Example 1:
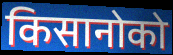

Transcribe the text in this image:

किसानोको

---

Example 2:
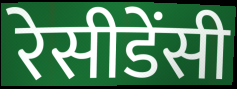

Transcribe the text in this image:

रेसीडेंसी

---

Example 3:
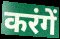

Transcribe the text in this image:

करंगें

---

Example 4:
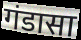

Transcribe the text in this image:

गंडासा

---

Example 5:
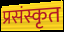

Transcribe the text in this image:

प्रसंस्कृत